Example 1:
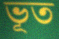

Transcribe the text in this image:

ভূত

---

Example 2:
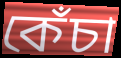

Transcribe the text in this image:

কেঁচা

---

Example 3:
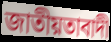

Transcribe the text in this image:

জাতীয়তাবাদী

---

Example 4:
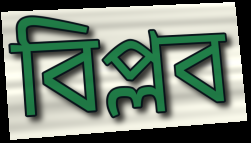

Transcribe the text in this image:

বিপ্লব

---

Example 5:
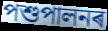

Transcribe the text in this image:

পশুপালনৰ